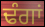
ਢੰਗਾਂ